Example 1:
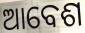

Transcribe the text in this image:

ଆବେଶ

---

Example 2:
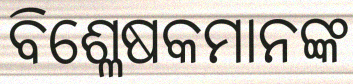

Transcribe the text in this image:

ବିଶ୍ଳେଷକମାନଙ୍କ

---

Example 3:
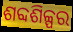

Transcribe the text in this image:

ଶବ୍ଦଶିଳ୍ପର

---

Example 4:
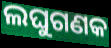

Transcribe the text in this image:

ଲଘୁଗଣକ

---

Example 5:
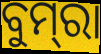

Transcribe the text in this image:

ବୁମ୍‌ରା